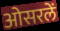
ओसरलें